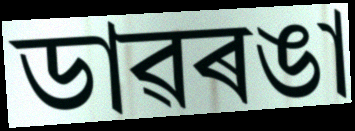
ডাৱৰঙা